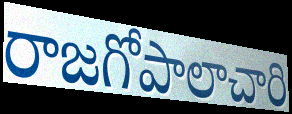
రాజగోపాలాచారి